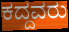
ಕದ್ದವರು